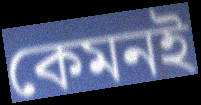
কেমনই